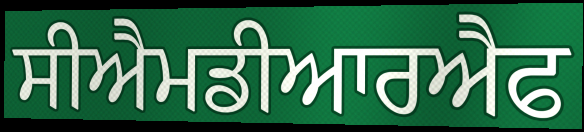
ਸੀਐਮਡੀਆਰਐਫ